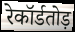
रेकॉर्डतोड़